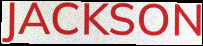
JACKSON